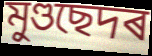
মুণ্ডছেদৰ